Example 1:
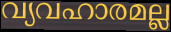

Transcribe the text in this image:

വ്യവഹാരമല്ല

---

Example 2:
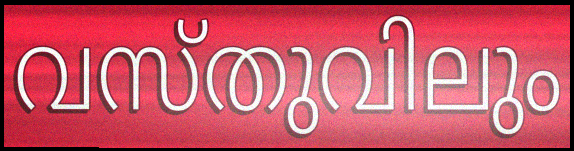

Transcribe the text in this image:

വസ്തുവിലും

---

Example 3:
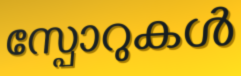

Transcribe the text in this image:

സ്പോറുകൾ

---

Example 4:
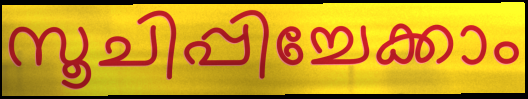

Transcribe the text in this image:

സൂചിപ്പിച്ചേക്കാം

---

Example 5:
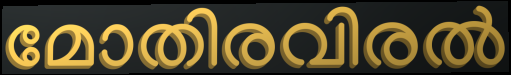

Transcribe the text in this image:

മോതിരവിരൽ